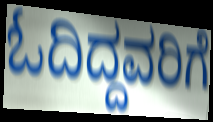
ಓದಿದ್ದವರಿಗೆ